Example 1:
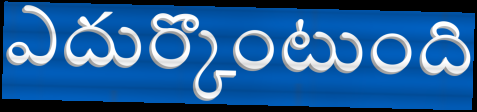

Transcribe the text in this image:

ఎదుర్కొంటుంది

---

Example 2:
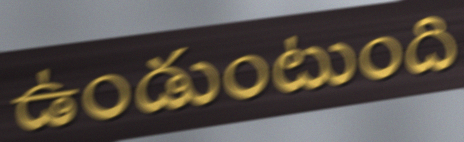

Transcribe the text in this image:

ఉండుంటుంది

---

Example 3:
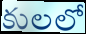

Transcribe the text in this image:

కులలో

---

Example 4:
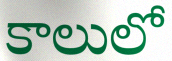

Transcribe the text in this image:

కాలులో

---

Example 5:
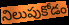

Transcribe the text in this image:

నిలుపుకోడం